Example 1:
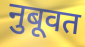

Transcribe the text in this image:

नुबूवत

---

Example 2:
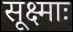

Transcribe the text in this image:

सूक्ष्माः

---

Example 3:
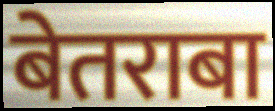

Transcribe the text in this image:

बेतराबा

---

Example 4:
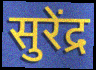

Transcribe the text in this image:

सुरेंद्र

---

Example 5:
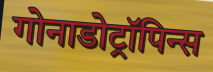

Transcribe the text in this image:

गोनाडोट्रॉपिन्स